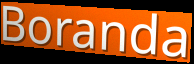
Boranda